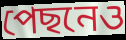
পেছনেও